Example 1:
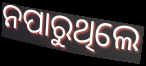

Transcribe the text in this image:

ନପାରୁଥିଲେ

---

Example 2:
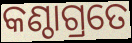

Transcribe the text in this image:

କଣ୍ଠାଗ୍ରତେ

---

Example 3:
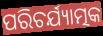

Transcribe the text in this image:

ପରିଚର୍ଯ୍ୟାତ୍ମକ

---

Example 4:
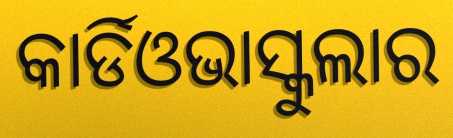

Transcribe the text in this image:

କାର୍ଡିଓଭାସ୍କୁଲାର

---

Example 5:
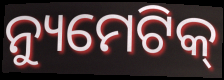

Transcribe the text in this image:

ନ୍ୟୁମେଟିକ୍